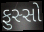
ફુસ્સો